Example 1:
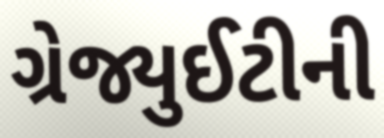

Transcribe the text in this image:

ગ્રેજ્યુઈટીની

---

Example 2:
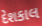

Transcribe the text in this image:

દેશકાલ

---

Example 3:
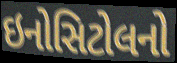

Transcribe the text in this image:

ઇનોસિટોલનો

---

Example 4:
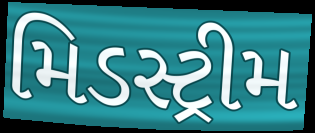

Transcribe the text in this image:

મિડસ્ટ્રીમ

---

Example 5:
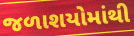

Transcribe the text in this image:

જળાશયોમાંથી